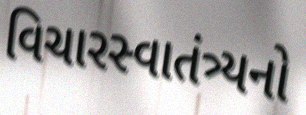
વિચારસ્વાતંત્ર્યનો